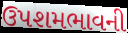
ઉપશમભાવની